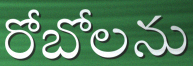
రోబోలను